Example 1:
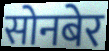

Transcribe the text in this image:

सोनबेर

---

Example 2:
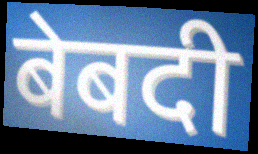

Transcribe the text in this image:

बेबदी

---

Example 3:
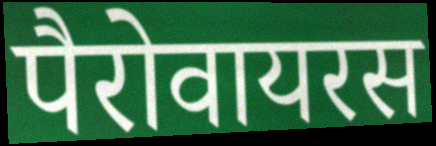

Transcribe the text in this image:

पैरोवायरस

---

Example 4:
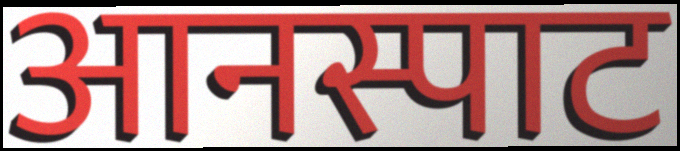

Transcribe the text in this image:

आनस्पाट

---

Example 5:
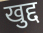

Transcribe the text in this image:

खुद्द